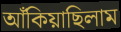
আঁকিয়াছিলাম